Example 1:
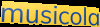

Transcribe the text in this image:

musicola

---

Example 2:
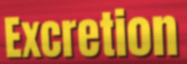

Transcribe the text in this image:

Excretion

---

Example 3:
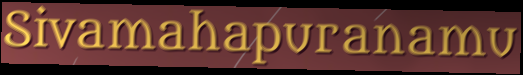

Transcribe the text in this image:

Sivamahapuranamu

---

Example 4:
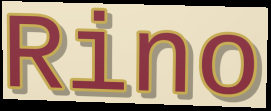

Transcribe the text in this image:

Rino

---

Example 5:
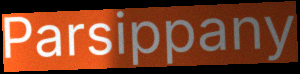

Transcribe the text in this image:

Parsippany